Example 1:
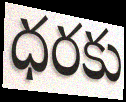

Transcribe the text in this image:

ధరకు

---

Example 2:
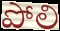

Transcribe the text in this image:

పోలి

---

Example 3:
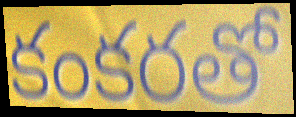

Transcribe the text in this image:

కంకరతో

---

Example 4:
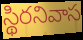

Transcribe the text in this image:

స్థిరనివాస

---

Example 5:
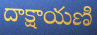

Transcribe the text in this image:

దాక్షాయణి